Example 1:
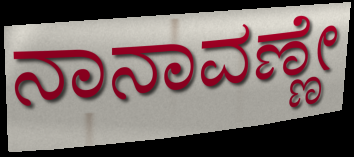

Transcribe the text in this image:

ನಾನಾವಣ್ಣೇ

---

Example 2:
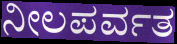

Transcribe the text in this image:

ನೀಲಪರ್ವತ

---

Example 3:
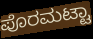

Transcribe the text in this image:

ಪೊರಮಟ್ಟಾ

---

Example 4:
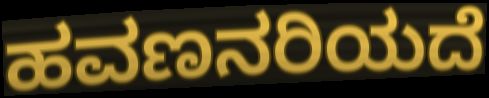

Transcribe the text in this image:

ಹವಣನರಿಯದೆ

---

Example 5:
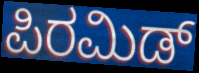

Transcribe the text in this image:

ಪಿರಮಿಡ್